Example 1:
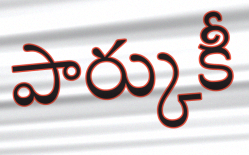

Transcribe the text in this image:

పార్కుకీ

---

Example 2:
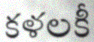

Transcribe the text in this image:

కళలకీ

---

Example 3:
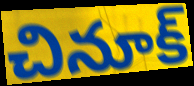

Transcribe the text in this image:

చినూక్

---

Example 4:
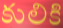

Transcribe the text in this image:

కులికి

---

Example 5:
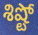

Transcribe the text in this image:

శిష్టో